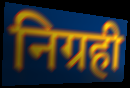
निग्रही